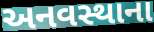
અનવસ્થાના